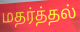
மதர்த்தல்